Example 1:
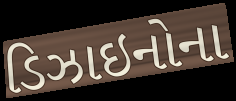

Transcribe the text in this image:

ડિઝાઇનોના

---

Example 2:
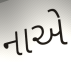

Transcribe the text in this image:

નાએ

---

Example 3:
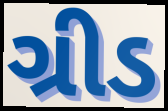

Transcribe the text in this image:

ગ્રીડ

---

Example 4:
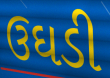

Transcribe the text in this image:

ઉઘડી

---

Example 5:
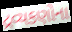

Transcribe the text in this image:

દ્રવ્યકણોના